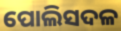
ପୋଲିସଦଳ